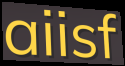
aiisf